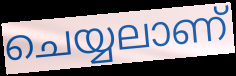
ചെയ്യലാണ്